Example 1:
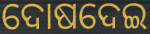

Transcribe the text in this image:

ଦୋଷଦେଇ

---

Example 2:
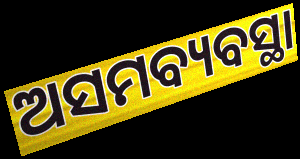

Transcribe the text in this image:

ଅସମବ୍ୟବସ୍ଥା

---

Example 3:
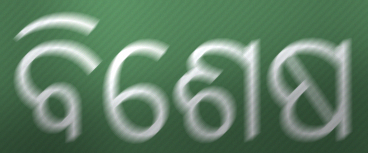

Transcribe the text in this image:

ବିଶେଷ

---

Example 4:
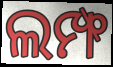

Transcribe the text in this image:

ଲମ୍ଫ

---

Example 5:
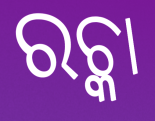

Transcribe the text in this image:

ରଚ୍କା